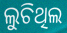
ଲୁଚିଥିଲ